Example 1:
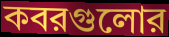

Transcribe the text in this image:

কবরগুলোর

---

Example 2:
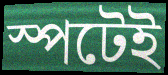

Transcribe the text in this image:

স্পটেই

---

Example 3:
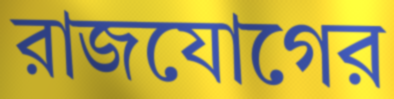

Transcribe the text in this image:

রাজযোগের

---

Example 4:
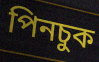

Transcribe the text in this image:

পিনচুক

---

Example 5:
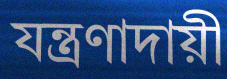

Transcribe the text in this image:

যন্ত্রণাদায়ী